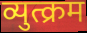
व्युत्क्रम